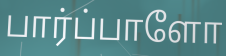
பார்ப்பாளோ